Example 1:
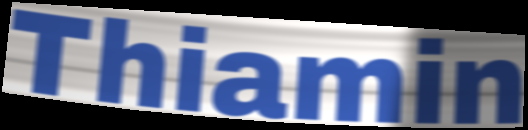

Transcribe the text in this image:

Thiamin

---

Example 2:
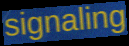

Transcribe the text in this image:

signaling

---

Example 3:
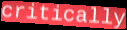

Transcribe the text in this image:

critically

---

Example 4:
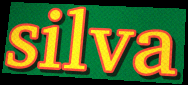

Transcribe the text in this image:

silva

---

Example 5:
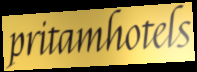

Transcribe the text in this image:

pritamhotels